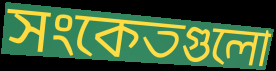
সংকেতগুলো